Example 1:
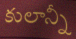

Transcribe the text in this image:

కులాన్నీ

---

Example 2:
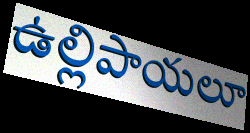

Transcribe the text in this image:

ఉల్లిపాయలూ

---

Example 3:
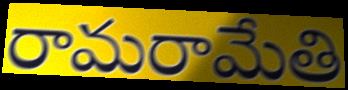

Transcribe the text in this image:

రామరామేతి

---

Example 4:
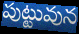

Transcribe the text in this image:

పుట్టువున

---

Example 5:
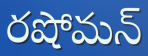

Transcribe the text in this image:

రషోమన్